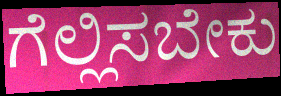
ಗೆಲ್ಲಿಸಬೇಕು